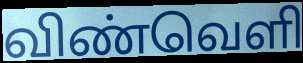
விண்வெளி